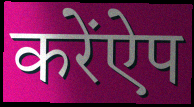
करेंऐप